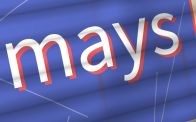
mays